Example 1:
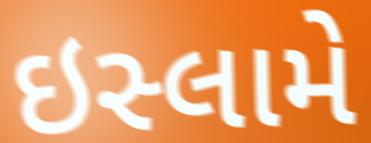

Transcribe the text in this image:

ઇસ્લામે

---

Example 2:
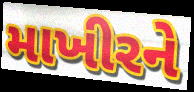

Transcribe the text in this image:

માખીરને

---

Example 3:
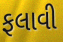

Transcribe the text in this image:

ફલાવી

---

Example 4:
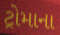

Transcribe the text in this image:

ટ્રોમાના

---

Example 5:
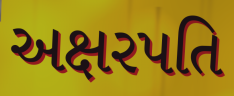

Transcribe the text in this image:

અક્ષરપતિ